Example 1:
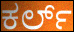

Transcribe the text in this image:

ಕರ್ಲ್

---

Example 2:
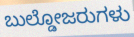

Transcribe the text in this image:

ಬುಲ್ಡೋಜರುಗಳು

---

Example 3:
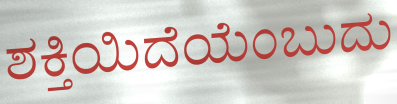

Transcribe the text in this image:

ಶಕ್ತಿಯಿದೆಯೆಂಬುದು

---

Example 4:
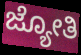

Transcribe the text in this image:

ಜ್ಯೋತಿ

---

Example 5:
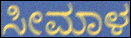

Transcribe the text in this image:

ಸೀಮಾಳ